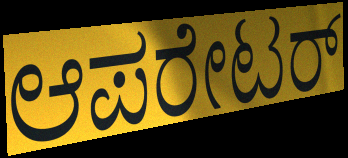
ಆಪರೇಟರ್